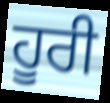
ਹੂਰੀ